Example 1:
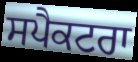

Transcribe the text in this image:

ਸਪੈਕਟਰਾ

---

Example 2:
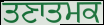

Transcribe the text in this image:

ਤਣਾਤਮਕ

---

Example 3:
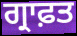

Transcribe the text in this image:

ਗ੍ਰਾਫ਼ਤ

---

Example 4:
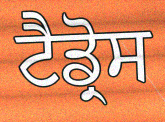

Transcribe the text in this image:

ਟੈਡ੍ਰੋਸ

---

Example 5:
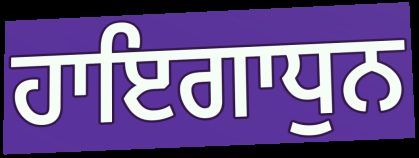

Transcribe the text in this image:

ਹਾਇਗਾਧੁਨ